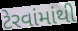
ટેરવાંમાંથી